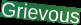
Grievous